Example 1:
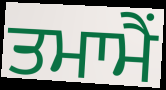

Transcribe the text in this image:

ਤਮਾਮੈਂ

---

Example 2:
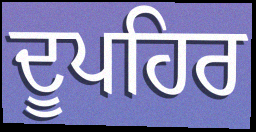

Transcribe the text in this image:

ਦੂਪਹਿਰ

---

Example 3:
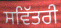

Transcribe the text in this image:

ਸਵਿੱਤਰੀ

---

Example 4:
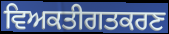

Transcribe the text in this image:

ਵਿਅਕਤੀਗਤਕਰਣ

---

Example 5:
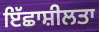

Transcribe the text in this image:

ਇੱਛਾਸ਼ੀਲਤਾ